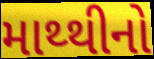
માથ્થીનો